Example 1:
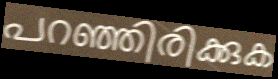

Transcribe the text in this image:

പറഞ്ഞിരിക്കുക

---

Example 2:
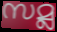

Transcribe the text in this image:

സമ്ല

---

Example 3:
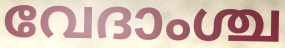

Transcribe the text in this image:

വേദാംശ്ച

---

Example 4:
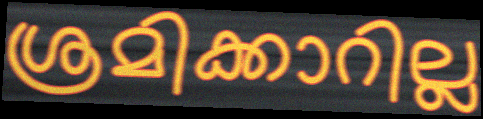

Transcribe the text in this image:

ശ്രമിക്കാറില്ല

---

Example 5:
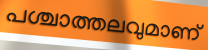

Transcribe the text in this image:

പശ്ചാത്തലവുമാണ്